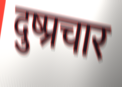
दुष्‍प्रचार